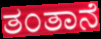
ತಂತಾನೆ